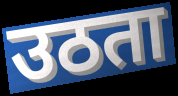
उठता